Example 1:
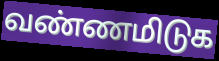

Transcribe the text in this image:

வண்ணமிடுக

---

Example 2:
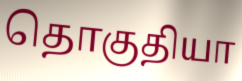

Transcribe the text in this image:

தொகுதியா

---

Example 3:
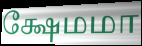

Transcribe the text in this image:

க்ஷேமமா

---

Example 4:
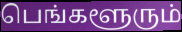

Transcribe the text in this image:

பெங்களூரும்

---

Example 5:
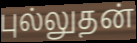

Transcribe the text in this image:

புல்லுதன்